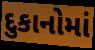
દુકાનોમાં